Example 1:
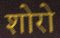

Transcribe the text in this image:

शोरो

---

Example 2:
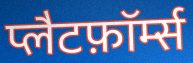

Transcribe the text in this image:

प्लैटफ़ॉर्म्स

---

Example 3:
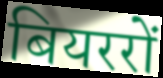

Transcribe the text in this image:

बियररों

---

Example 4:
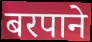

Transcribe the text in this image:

बरपाने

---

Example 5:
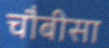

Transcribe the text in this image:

चौबीसा